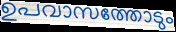
ഉപവാസത്തോടും